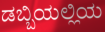
ಡಬ್ಬಿಯಲ್ಲಿಯ